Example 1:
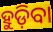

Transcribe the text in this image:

ହୁଡ଼ିବା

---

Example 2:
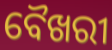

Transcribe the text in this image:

ବୈଖରୀ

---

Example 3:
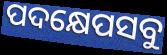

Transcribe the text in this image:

ପଦକ୍ଷେପସବୁ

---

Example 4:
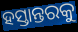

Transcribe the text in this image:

ହସ୍ତାନ୍ତରକୁ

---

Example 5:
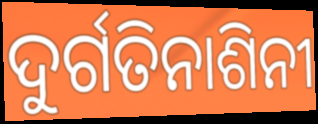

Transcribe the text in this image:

ଦୁର୍ଗତିନାଶିନୀ